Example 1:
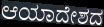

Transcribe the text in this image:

ಆಯಾದೇಶದ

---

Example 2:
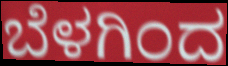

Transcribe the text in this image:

ಬೆಳಗಿಂದ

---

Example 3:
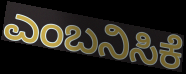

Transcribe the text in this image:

ಎಂಬನಿಸಿಕೆ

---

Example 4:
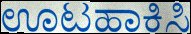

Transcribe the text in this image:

ಊಟಹಾಕಿಸಿ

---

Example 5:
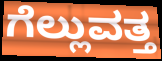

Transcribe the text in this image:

ಗೆಲ್ಲುವತ್ತ